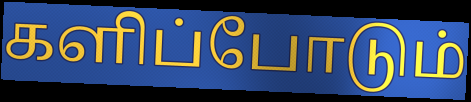
களிப்போடும்